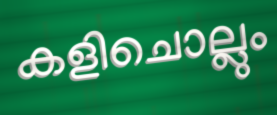
കളിചൊല്ലും